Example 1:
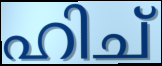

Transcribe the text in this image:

ഹിച്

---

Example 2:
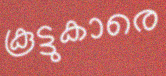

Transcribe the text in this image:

കൂട്ടുകാരെ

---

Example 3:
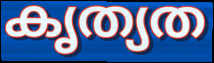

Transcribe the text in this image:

കൃത്യത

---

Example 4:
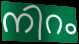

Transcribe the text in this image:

നിറം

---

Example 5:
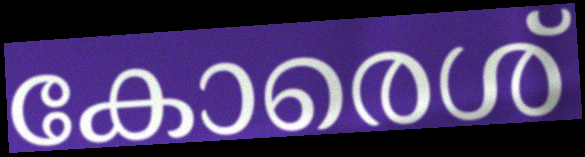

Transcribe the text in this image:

കോരെശ്